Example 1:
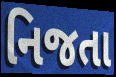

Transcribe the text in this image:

નિજતા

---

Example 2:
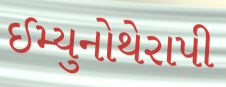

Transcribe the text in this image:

ઈમ્યુનોથેરાપી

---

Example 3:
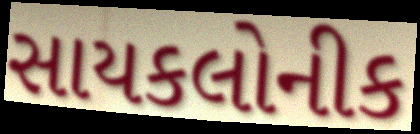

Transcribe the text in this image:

સાયકલોનીક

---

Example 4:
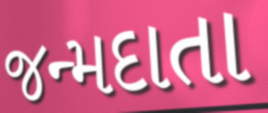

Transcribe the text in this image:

જન્મદાતા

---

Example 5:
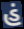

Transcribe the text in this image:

હં